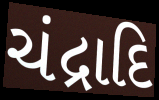
ચંદ્રાદિ